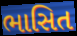
ભાસિત